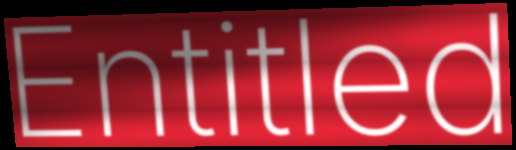
Entitled